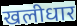
खलीधार